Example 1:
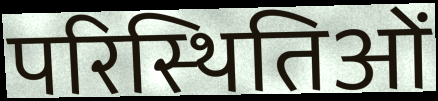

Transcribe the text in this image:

परिस्थितिओं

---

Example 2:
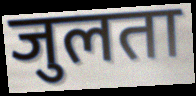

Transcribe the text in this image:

जुलता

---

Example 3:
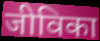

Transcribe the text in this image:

जीविका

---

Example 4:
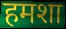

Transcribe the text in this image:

हमशा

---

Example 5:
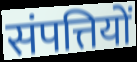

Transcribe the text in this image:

संपत्तियों